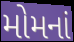
મોમનાં